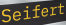
Seifert